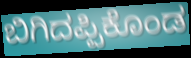
ಬಿಗಿದಪ್ಪಿಕೊಂಡ